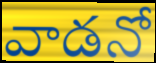
వాడనో